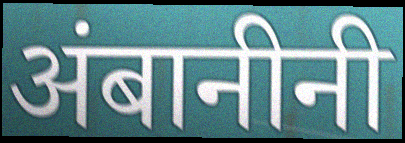
अंबानीनी